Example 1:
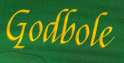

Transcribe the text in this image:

Godbole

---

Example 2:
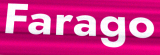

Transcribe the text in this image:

Farago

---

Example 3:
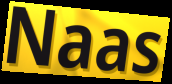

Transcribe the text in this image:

Naas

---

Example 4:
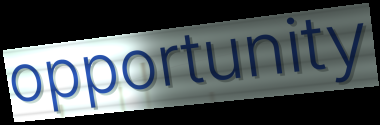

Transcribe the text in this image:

opportunity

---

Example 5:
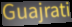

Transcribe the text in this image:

Guajrati